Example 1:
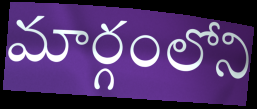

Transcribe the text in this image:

మార్గంలోని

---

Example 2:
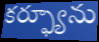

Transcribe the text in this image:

కర్ఫ్యూను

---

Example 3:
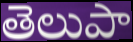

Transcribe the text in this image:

తెలుపా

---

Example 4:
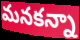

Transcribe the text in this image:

మనకన్నా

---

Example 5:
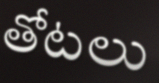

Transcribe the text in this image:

తోటలు